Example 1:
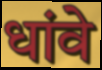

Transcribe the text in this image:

धांवे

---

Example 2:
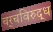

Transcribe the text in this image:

चर्चविरुद्ध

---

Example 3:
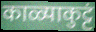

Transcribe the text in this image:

काळ्याकुट्टं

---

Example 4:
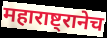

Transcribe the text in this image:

महाराष्ट्रानेच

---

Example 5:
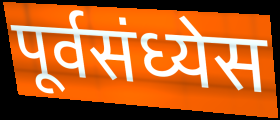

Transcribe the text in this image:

पूर्वसंध्येस